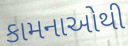
કામનાઓથી